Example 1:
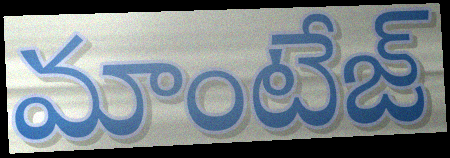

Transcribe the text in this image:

మాంటేజ్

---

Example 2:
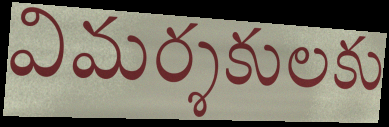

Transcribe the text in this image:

విమర్శకులకు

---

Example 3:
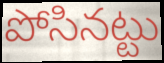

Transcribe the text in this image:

పోసినట్టు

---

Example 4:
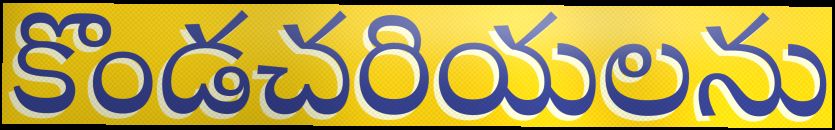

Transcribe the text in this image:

కొండచరియలను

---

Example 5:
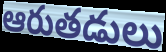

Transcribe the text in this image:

ఆరుతడులు